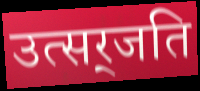
उत्सर्जति